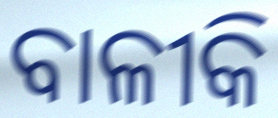
ବାଳୀକି